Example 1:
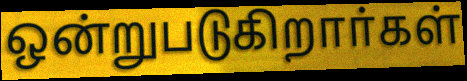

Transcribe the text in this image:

ஒன்றுபடுகிறார்கள்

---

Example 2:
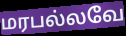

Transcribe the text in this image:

மரபல்லவே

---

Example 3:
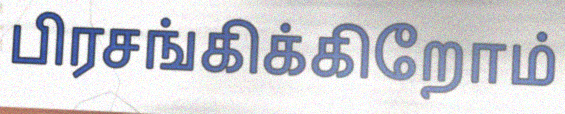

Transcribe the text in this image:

பிரசங்கிக்கிறோம்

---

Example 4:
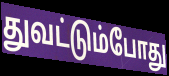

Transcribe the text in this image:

துவட்டும்போது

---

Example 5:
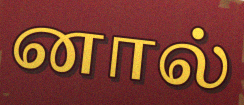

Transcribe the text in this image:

னால்